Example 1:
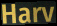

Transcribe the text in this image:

Harv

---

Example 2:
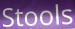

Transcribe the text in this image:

Stools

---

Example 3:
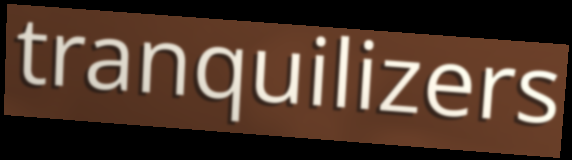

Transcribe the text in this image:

tranquilizers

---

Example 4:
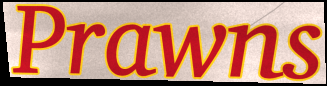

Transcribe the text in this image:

Prawns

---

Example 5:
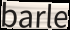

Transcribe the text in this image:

barle